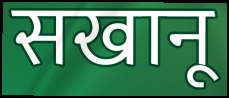
सखानू